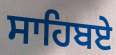
ਸਾਹਿਬਏ